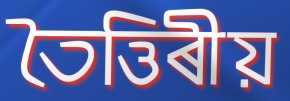
তৈত্তিৰীয়